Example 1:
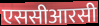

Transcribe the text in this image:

एससीआरसी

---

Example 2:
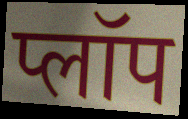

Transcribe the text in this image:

प्लॉप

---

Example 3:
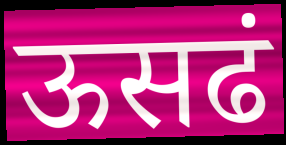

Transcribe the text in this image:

ऊसढं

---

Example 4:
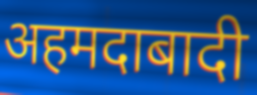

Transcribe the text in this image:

अहमदाबादी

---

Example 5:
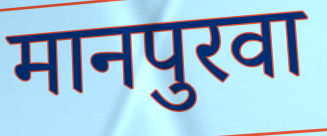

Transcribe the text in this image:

मानपुरवा